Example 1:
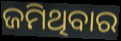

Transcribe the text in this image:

ଜମିଥିବାର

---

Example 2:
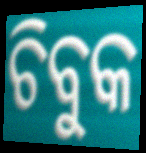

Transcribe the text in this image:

ଚିବୁକ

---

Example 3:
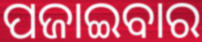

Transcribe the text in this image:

ପଜାଇବାର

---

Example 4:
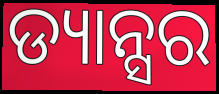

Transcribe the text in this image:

ଡ୍ୟାନ୍ସର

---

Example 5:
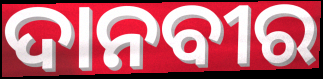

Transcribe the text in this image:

ଦାନବୀର